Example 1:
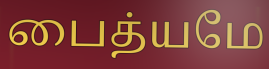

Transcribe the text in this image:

பைத்யமே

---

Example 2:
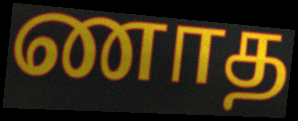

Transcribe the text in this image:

ணாத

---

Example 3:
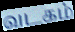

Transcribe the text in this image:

வடகம்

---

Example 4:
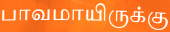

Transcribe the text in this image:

பாவமாயிருக்கு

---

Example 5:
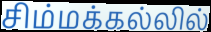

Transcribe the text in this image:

சிம்மக்கல்லில்